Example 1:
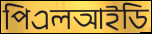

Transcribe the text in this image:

পিএলআইডি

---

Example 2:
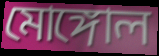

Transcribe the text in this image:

মোঙ্গোল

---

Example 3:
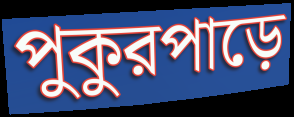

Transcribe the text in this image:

পুকুরপাড়ে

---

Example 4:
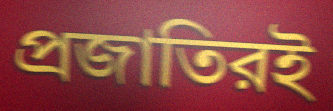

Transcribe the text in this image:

প্রজাতিরই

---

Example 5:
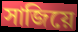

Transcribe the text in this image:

সাজিয়ে